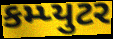
કમ્પ્યુટર